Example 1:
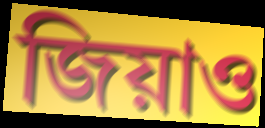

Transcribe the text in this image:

জিয়াও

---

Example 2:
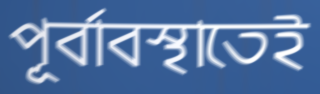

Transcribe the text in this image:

পূর্বাবস্থাতেই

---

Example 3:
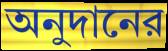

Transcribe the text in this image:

অনুদানের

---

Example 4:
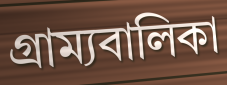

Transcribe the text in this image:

গ্রাম্যবালিকা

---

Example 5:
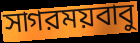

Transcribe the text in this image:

সাগরময়বাবু